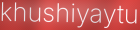
khushiyaytu